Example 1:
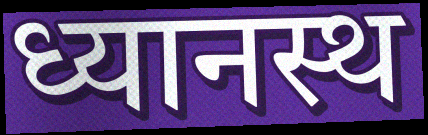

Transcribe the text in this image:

ध्यानस्थ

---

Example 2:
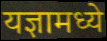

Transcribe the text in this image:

यज्ञामध्ये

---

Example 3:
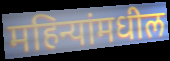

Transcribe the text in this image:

महिन्यांमधील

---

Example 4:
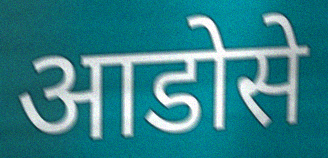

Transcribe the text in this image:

आडोसे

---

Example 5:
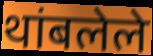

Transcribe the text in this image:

थांबलेले